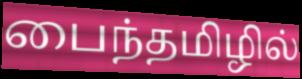
பைந்தமிழில்